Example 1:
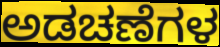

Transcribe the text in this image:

ಅಡಚಣೆಗಳ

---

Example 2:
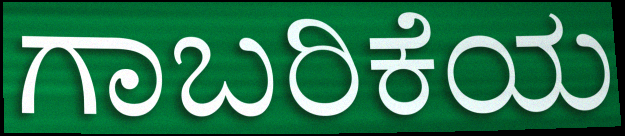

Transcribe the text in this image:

ಗಾಬರಿಕೆಯ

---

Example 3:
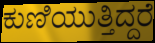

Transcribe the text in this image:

ಕುಣಿಯುತ್ತಿದ್ದರೆ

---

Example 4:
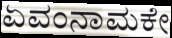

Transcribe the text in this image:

ಏವಂನಾಮಕೇ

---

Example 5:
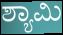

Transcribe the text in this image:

ಶ್ಯಾಮಿ